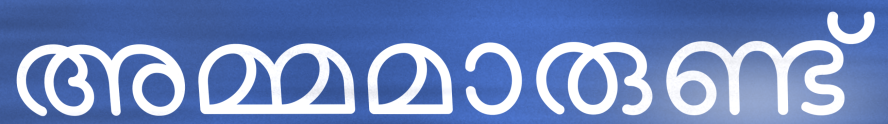
അമ്മമാരുണ്ട്